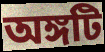
অঙ্গটি